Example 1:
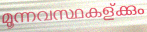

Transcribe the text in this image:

മൂന്നവസ്ഥകള്ക്കും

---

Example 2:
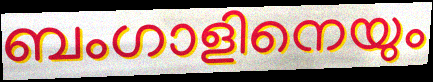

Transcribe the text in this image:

ബംഗാളിനെയും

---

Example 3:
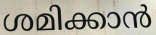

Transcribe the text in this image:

ശമിക്കാൻ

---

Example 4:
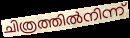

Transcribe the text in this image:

ചിത്രത്തിൽനിന്ന്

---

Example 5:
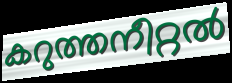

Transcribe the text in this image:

കറുത്തനീറ്റൽ